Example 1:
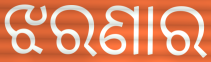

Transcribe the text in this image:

ଝରଣାର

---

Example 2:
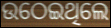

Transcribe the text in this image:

ଉଠେଇଥିଲେ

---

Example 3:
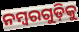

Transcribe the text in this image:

ନମ୍ବରଗୁଡ଼ିକୁ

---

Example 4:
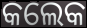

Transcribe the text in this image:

କଲେକ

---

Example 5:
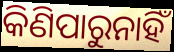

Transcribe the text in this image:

କିଣିପାରୁନାହିଁ